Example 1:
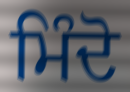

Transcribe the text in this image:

ਮਿੰਦੋ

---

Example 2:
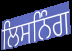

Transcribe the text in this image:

ਲਿਸਨਿੰਗ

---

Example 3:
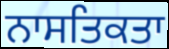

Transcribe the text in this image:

ਨਾਸਤਿਕਤਾ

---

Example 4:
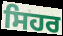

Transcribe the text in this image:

ਸਿਹਰ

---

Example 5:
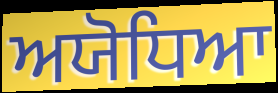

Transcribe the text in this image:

ਅਯੋਧਿਆ